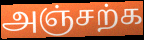
அஞ்சற்க